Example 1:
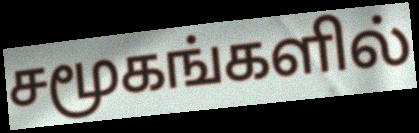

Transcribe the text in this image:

சமூகங்களில்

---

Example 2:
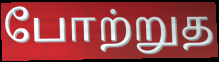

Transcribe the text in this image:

போற்றுத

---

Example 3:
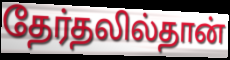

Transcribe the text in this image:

தேர்தலில்தான்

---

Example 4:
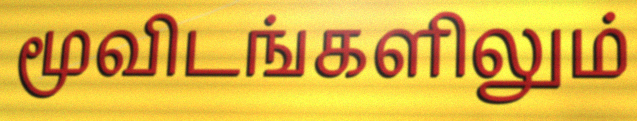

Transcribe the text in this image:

மூவிடங்களிலும்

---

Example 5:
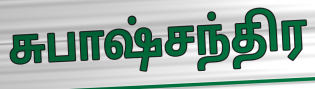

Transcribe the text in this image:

சுபாஷ்சந்திர